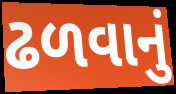
ઢળવાનું